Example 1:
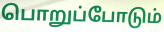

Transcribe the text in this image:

பொறுப்போடும்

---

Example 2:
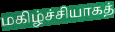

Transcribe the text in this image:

மகிழ்ச்சியாகத்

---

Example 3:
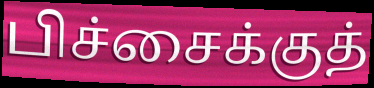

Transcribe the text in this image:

பிச்சைக்குத்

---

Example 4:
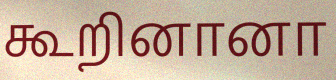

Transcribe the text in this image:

கூறினானா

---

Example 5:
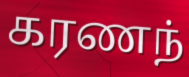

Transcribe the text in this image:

கரணந்